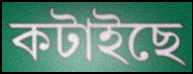
কটাইছে